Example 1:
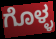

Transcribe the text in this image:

ಗೊಳ್ಳ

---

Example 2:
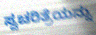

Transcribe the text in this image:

ಸ್ವಚರಿತ್ರೆಯನ್ನು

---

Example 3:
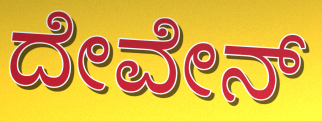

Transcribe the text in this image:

ದೇವೇನ್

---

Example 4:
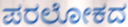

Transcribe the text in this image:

ಪರಲೋಕದ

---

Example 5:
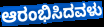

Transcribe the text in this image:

ಆರಂಭಿಸಿದವಳು